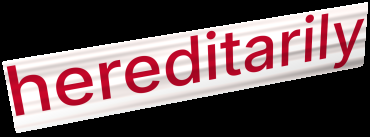
hereditarily